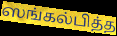
ஸங்கல்பித்த